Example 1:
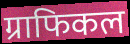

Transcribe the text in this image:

ग्राफिकल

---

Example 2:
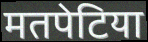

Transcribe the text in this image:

मतपेटिया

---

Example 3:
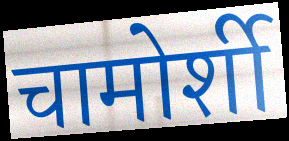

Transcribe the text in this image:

चामोर्शी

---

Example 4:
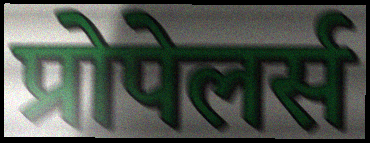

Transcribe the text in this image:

प्रोपेलर्स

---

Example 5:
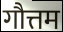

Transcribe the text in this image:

गौत्तम